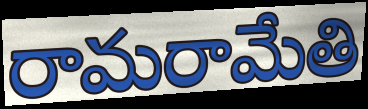
రామరామేతి